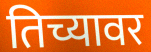
तिच्यावर